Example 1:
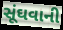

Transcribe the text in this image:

સૂંઘવાની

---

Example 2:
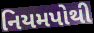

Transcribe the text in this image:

નિયમપોથી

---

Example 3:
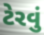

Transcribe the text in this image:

ટેરવું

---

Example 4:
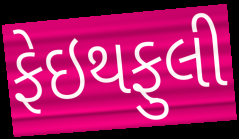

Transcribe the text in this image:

ફેઇથફુલી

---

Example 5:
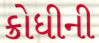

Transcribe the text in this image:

ક્રોધીની